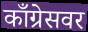
काँग्रेसवर